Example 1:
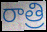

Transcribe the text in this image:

రాత్రి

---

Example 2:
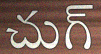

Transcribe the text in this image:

చుగ్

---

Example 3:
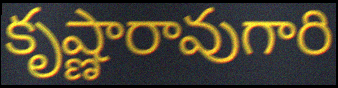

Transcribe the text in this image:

కృష్ణారావుగారి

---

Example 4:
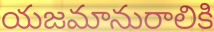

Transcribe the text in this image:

యజమానురాలికి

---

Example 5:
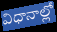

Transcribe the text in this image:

విధానాల్లో